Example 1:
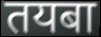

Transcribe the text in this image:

तयबा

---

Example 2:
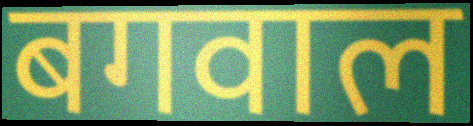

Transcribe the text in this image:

बगवाल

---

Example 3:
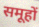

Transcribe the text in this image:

समूहों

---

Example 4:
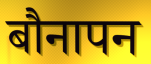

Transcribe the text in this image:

बौनापन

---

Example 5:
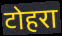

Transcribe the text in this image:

टोहरा